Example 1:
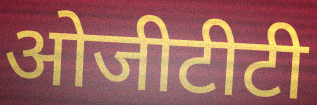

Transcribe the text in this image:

ओजीटीटी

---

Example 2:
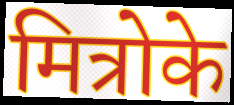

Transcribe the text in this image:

मित्रोके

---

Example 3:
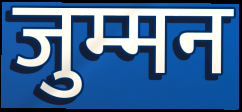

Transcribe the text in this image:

जुम्मन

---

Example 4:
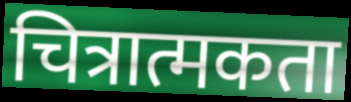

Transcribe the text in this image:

चित्रात्मकता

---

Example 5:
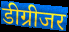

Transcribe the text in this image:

डीग्रीजर